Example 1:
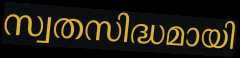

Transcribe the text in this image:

സ്വതസിദ്ധമായി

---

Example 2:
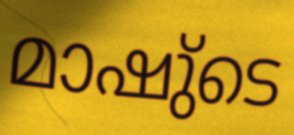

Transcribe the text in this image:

മാഷു്ടെ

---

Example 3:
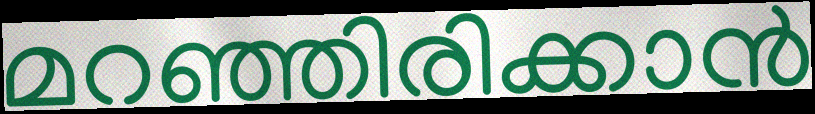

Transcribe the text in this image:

മറഞ്ഞിരിക്കാൻ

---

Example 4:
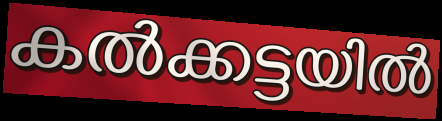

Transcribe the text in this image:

കൽക്കട്ടയിൽ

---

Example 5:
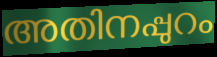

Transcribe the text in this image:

അതിനപ്പുറം